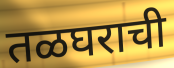
तळघराची